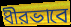
ধীরভাবে